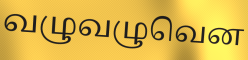
வழுவழுவென